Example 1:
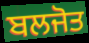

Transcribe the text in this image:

ਬਲਜੋਤ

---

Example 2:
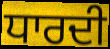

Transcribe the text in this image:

ਧਾਰਦੀ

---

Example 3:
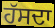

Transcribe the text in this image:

ਹੱਸਦਾ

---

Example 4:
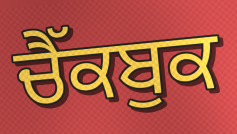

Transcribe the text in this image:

ਚੈੱਕਬੁਕ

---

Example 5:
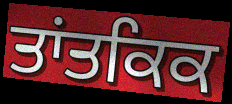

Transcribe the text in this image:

ਤਾਂਤਕਿਕ